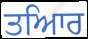
ਤਆਿਰ